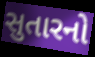
સુતારનો